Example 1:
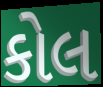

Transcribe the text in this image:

કોલ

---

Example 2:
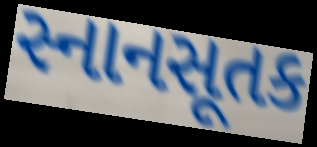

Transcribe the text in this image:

સ્નાનસૂતક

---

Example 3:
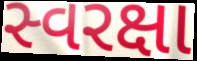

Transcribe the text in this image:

સ્વરક્ષા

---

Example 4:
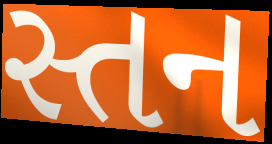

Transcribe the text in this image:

સ્તન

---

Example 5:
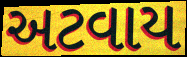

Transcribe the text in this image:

અટવાય